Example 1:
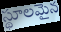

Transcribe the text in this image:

స్థూలమైన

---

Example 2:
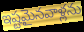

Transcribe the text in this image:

ఇష్టమైనవాళ్లను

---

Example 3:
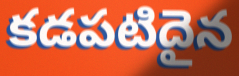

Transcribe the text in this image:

కడపటిదైన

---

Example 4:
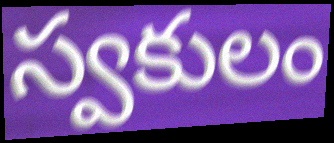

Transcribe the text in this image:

స్వకులం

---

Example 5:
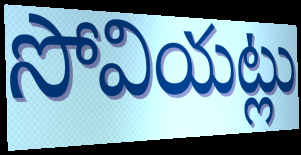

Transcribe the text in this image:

సోవియట్లు